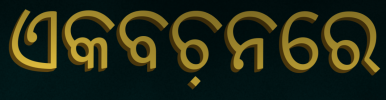
ଏକବଚ଼ନରେ